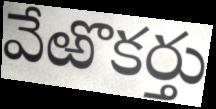
వేఱొకర్తు